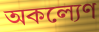
অকল্যেণ